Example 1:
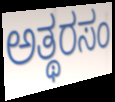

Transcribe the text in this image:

ಅತ್ಥರಸಂ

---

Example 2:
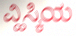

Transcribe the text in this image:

ವ್ಹಿಸ್ಕಿಯ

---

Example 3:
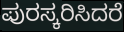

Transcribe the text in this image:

ಪುರಸ್ಕರಿಸಿದರೆ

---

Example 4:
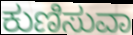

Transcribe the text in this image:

ಕುಣಿಸುವಾ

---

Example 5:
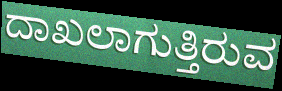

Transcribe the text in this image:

ದಾಖಲಾಗುತ್ತಿರುವ